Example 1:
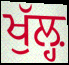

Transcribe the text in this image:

ਖੁੱਲ਼੍ਹ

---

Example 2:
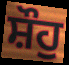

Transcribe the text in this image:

ਸ਼ੌਹੁ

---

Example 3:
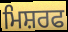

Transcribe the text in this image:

ਮਿਸ਼ਰਫ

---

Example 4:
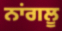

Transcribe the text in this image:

ਨਾਂਗਲੂ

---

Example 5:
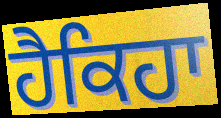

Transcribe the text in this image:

ਹੈਕਿਹਾ